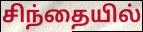
சிந்தையில்